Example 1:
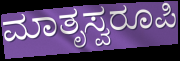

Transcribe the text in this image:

ಮಾತೃಸ್ವರೂಪಿ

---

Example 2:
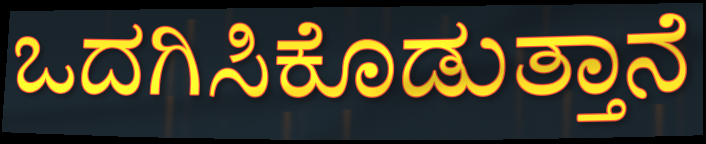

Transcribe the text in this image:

ಒದಗಿಸಿಕೊಡುತ್ತಾನೆ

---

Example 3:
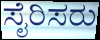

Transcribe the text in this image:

ಸೈರಿಸರು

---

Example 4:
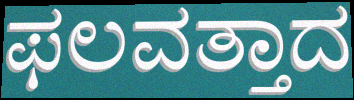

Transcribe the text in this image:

ಫಲವತ್ತಾದ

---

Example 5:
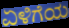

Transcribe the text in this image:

ಏಳಿಗೆಯ